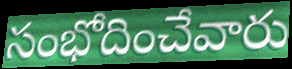
సంభోదించేవారు